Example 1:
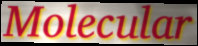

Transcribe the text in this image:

Molecular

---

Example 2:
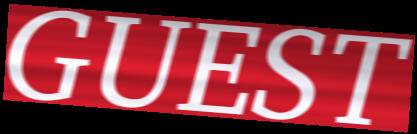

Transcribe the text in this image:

GUEST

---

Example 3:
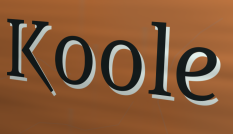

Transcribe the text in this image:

Koole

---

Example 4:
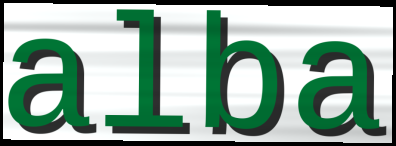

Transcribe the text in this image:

alba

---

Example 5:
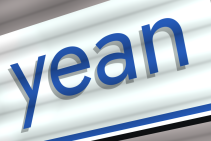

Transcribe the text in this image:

yean